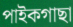
পাইকগাছা